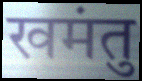
खमंतु